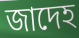
জাদেহ